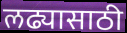
लढ्यासाठी